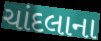
ચાંદલાના